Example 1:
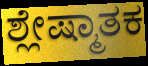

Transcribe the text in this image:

ಶ್ಲೇಷ್ಮಾತಕ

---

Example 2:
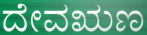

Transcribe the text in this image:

ದೇವಋಣ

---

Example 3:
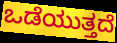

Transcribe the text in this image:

ಒಡೆಯುತ್ತದೆ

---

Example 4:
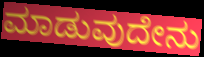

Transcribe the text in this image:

ಮಾಡುವುದೇನು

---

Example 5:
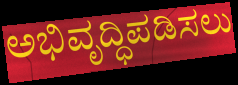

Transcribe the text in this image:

ಅಭಿವೃದ್ಧಿಪಡಿಸಲು